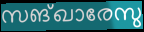
സങ്ഖാരേസു